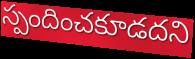
స్పందించకూడదని